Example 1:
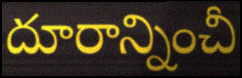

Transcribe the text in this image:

దూరాన్నించీ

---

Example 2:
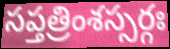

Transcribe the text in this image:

సప్తత్రింశస్సర్గః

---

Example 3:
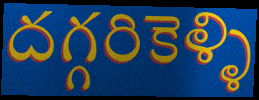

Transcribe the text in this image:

దగ్గరికెళ్ళి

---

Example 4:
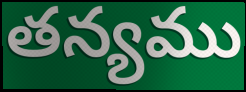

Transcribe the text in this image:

తన్యము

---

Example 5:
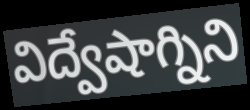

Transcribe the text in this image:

విద్వేషాగ్నిని